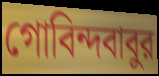
গোবিন্দবাবুর